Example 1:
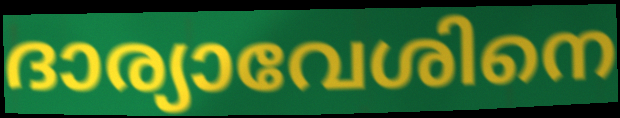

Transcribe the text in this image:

ദാര്യാവേശിനെ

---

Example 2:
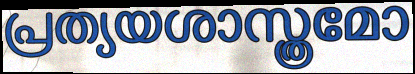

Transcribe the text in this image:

പ്രത്യയശാസ്ത്രമോ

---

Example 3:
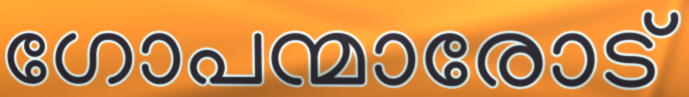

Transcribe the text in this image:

ഗോപന്മാരോട്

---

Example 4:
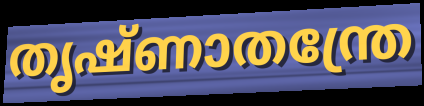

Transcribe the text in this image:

തൃഷ്ണാതന്ത്രേ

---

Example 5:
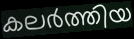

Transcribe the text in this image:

കലർത്തിയ